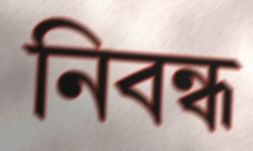
নিবন্ধ